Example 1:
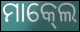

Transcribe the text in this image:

ମାକ୍‍ଲେ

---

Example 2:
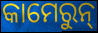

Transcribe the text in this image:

କାମେରୁନ୍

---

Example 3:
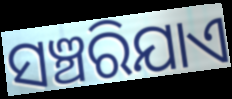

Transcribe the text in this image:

ସଞ୍ଚରିଯାଏ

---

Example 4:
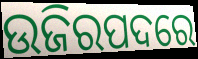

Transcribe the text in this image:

ଉଜିରପଦରେ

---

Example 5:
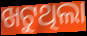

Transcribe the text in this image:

ଖଟୁଥିଲା